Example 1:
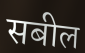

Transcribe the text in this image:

सबील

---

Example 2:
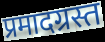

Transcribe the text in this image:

प्रमादग्रस्त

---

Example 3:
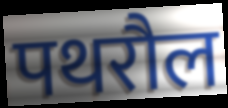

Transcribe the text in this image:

पथरौल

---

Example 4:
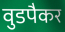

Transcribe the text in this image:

वुडपैकर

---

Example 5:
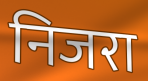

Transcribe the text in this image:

निजरा